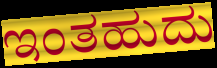
ಇಂತಹುದು